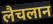
लैचलान